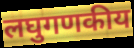
लघुगणकीय